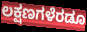
ಲಕ್ಷಣಗಳೆರಡೂ